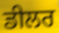
ਡੀਲਰ